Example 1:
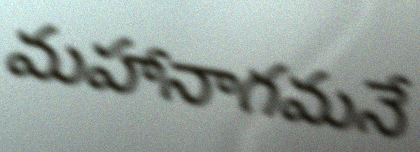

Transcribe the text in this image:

మహానాగమనే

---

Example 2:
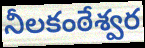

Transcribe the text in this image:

నీలకంఠేశ్వర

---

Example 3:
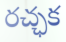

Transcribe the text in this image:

రచ్ఛక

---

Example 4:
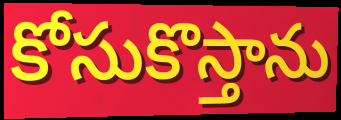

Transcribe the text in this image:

కోసుకొస్తాను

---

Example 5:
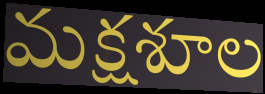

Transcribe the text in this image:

మక్షశూల